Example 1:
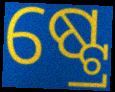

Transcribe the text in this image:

ଷ୍ଟ୍ରେ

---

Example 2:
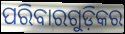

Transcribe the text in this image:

ପରିବାରଗୁଡ଼ିକର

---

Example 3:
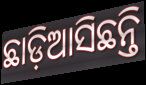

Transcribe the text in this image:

ଛାଡ଼ିଆସିଛନ୍ତି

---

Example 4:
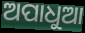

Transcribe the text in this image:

ଅପାଧୁଆ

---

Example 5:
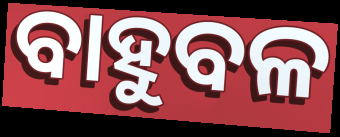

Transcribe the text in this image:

ବାହୁବଳ